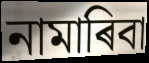
নামাৰিবা